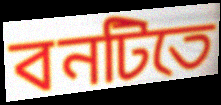
বনটিতে